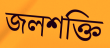
জলশক্তি